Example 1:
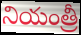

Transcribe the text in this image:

నియంత్రీ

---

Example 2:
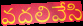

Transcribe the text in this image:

వదలివేసి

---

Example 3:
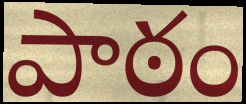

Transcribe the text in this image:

పాఠం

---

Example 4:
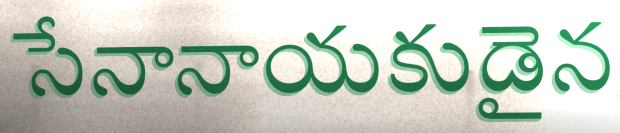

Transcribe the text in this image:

సేనానాయకుడైన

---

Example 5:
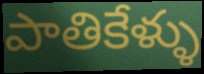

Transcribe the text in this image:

పాతికేళ్ళు